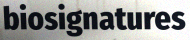
biosignatures